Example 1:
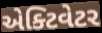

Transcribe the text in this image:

એક્ટિવેટર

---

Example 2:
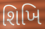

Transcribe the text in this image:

શિખિ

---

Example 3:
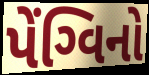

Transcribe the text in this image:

પેંગ્વિનો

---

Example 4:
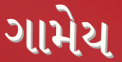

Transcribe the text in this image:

ગામેય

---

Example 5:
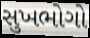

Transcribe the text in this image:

સુખભોગો